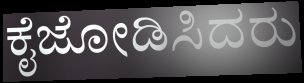
ಕೈಜೋಡಿಸಿದರು